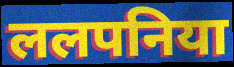
ललपनिया